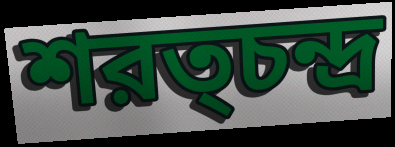
শরত্চন্দ্র